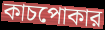
কাচপোকার